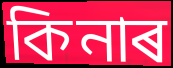
কিনাৰ